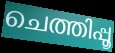
ചെത്തിപ്പൂ